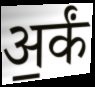
अ॒र्कं